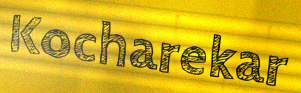
Kocharekar